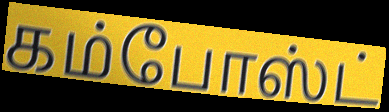
கம்போஸ்ட்